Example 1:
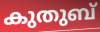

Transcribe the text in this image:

കുതുബ്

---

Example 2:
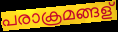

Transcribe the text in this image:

പരാക്രമങ്ങള്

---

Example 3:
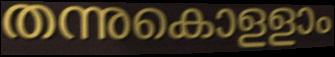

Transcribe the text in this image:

തന്നുകൊളളാം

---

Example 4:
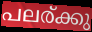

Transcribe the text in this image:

പലര്ക്കു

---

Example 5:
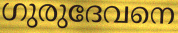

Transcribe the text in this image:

ഗുരുദേവനെ